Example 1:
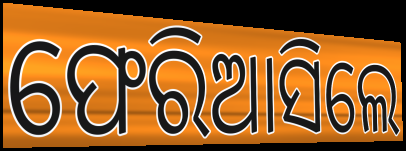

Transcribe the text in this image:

ଫେରିଆସିଲେ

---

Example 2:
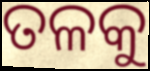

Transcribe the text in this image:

ତଳକୁ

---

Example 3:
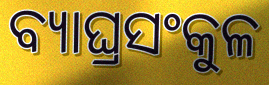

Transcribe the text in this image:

ବ୍ୟାଘ୍ରସଂକୁଳ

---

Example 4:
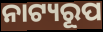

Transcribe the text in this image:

ନାଟ୍ୟରୂପ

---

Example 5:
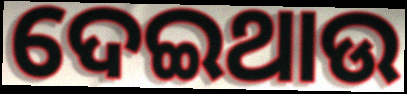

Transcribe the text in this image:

ଦେଇଥାଉ